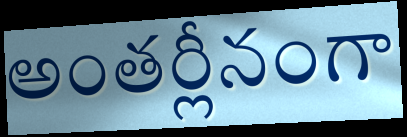
అంతర్లీనంగా